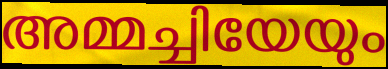
അമ്മച്ചിയേയും